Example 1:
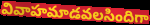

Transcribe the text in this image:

వివాహమాడవలసిందిగా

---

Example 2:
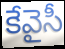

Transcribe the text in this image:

కేవైసీ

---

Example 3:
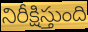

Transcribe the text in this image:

నిరీక్షిస్తుంది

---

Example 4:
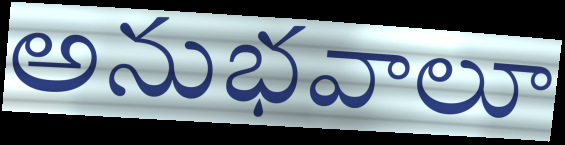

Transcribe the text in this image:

అనుభవాలూ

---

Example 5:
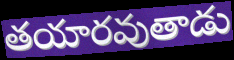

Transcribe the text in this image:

తయారవుతాడు